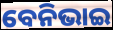
ବେନିଭାଇ